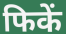
फिकें